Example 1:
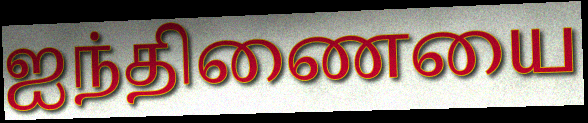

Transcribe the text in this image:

ஐந்திணையை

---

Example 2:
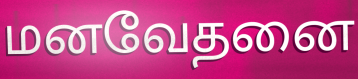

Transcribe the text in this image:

மனவேதனை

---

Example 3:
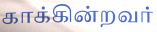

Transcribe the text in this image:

காக்கின்றவர்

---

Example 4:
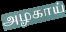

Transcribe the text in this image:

அழகாய்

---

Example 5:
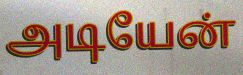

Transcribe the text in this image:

அடியேன்